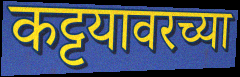
कट्टयावरच्या